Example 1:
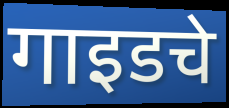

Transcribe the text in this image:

गाइडचे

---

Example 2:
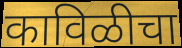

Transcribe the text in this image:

काविळीचा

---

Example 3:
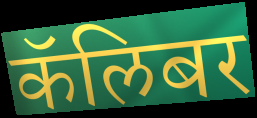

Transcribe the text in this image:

कॅलिबर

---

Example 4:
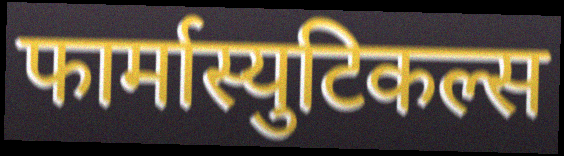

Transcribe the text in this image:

फार्मास्युटिकल्स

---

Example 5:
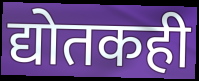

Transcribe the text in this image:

द्योतकही